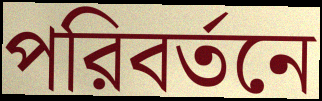
পরিবর্তনে